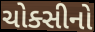
ચોક્સીનો